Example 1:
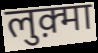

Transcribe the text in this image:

लुक़्मा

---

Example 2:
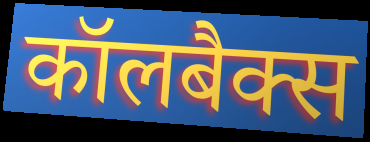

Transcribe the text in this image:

कॉलबैक्स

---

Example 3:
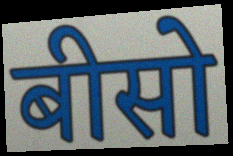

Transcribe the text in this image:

बीसो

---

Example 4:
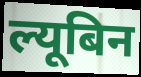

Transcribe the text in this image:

ल्यूबिन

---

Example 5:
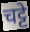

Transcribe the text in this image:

चट्टे